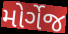
મોર્ગેજ